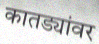
कातड्यांवर